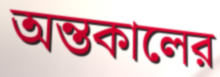
অন্তকালের